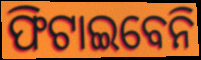
ଫିଟାଇବେନି